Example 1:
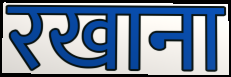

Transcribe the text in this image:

रखाना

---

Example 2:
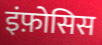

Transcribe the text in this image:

इंफ़ोसिस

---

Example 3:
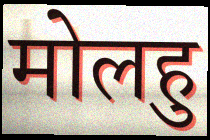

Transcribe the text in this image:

मोलहु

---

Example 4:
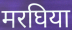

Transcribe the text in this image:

मरघिया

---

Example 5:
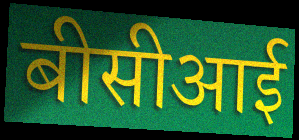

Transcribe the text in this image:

बीसीआई